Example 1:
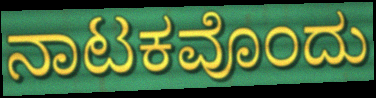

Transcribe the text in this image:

ನಾಟಕವೊಂದು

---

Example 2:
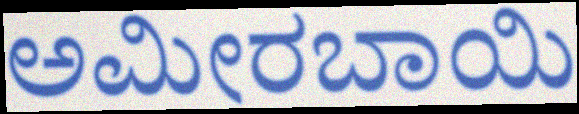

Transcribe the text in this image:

ಅಮೀರಬಾಯಿ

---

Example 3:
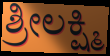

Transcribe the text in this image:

ಶ್ರೀಲಕ್ಷ್ಮಿ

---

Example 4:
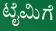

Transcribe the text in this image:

ಟೈಮಿಗೆ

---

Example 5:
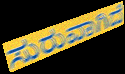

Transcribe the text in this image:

ಸುರುವಾಗಿದೆ